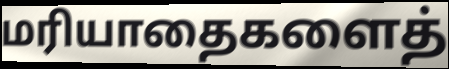
மரியாதைகளைத்